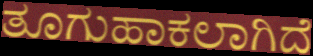
ತೂಗುಹಾಕಲಾಗಿದೆ